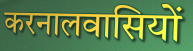
करनालवासियों